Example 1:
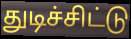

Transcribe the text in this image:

துடிச்சிட்டு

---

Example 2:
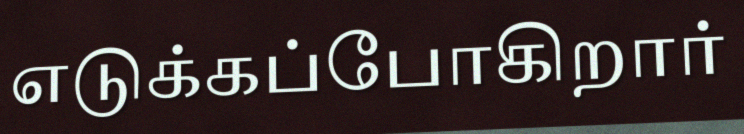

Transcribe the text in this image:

எடுக்கப்போகிறார்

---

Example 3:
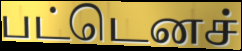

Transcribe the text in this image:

பட்டெனச்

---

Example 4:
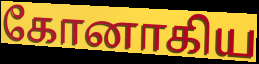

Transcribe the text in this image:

கோனாகிய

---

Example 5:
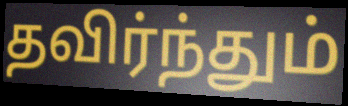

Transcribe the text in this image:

தவிர்ந்தும்